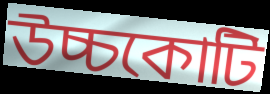
উচ্চকোটি